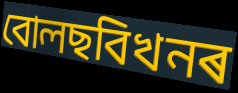
বোলছবিখনৰ